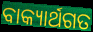
ବାକ୍ୟାର୍ଥଗତ